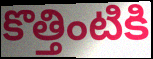
కొత్తింటికి